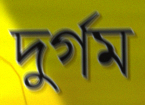
দুৰ্গম